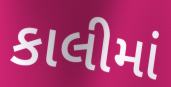
કાલીમાં